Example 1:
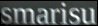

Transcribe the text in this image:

smarisu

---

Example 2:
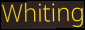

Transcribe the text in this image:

Whiting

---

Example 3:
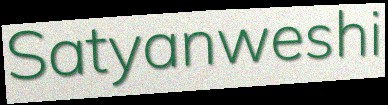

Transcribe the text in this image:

Satyanweshi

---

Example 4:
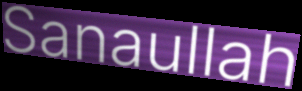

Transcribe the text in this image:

Sanaullah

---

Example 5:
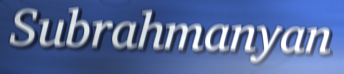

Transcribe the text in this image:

Subrahmanyan